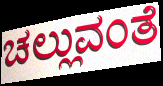
ಚಲ್ಲುವಂತೆ